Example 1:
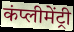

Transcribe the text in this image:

कंप्लीमेंट्री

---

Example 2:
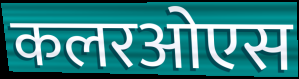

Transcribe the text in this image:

कलरओएस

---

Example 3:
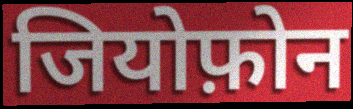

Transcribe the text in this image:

जियोफ़ोन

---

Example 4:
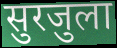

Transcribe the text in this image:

सुरजुला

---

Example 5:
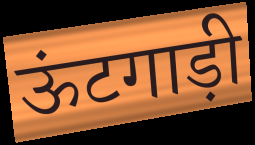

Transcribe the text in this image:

ऊंटगाड़ी